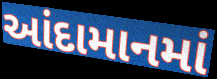
આંદામાનમાં